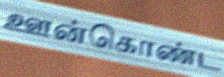
ஊன்கொண்ட